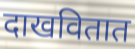
दाखवितात